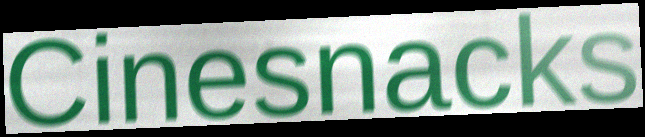
Cinesnacks